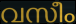
വസീം